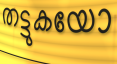
തട്ടുകയോ